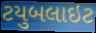
ટયુબલાઇટ